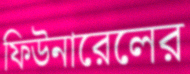
ফিউনারেলের